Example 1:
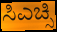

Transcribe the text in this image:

ಸಿಎಚ್ಸಿ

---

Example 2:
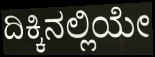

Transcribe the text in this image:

ದಿಕ್ಕಿನಲ್ಲಿಯೇ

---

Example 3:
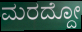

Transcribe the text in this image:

ಮರದ್ದೋ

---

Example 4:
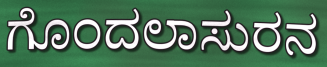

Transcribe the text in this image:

ಗೊಂದಲಾಸುರನ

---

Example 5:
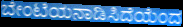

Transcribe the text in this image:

ಬೇಂಟೆಯನಾಡಿಸಿದೆಯೆಂದ